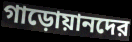
গাড়োয়ানদের